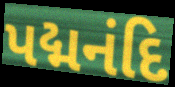
પદ્મનંદિ